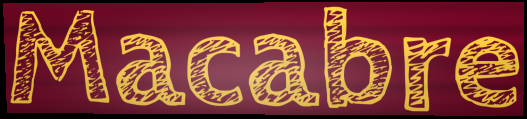
Macabre